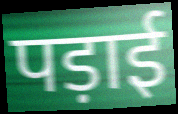
पड़ाई